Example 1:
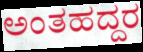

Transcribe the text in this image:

ಅಂತಹದ್ದರ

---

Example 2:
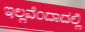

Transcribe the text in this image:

ಇಲ್ಲವೆಂದಾದಲ್ಲಿ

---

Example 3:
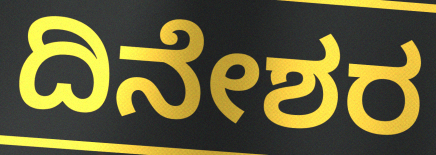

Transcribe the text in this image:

ದಿನೇಶರ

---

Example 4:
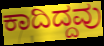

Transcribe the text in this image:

ಕಾದಿದ್ದವು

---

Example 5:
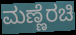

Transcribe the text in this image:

ಮಣ್ಣೆರಚಿ